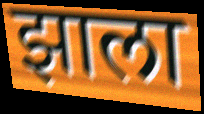
झाला